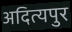
अदित्यपुर